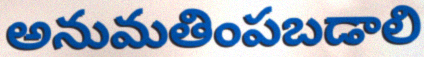
అనుమతింపబడాలి